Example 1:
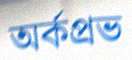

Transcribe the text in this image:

অর্কপ্রভ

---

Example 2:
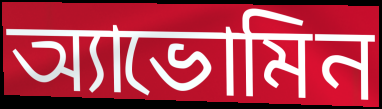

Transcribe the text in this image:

অ্যাভোমিন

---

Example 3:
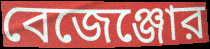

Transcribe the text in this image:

বেজেঞ্জোর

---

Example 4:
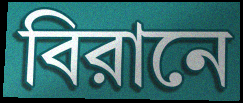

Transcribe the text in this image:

বিরানে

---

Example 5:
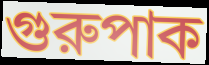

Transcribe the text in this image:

গুরুপাক